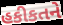
હકીકતને